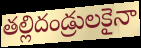
తల్లిదండ్రులకైనా